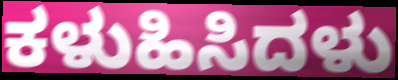
ಕಳುಹಿಸಿದಳು